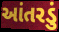
આંતરડું